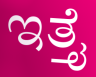
ಇತ್ತೈ